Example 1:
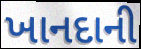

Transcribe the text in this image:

ખાનદાની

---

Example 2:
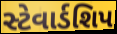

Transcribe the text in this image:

સ્ટેવાર્ડશિપ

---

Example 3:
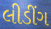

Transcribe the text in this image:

લીડીંગ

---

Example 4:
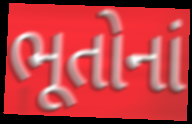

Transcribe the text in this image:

ભૂતોનાં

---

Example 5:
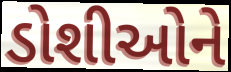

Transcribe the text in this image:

ડોશીઓને